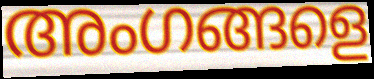
അംഗങ്ങളെ